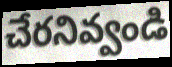
చేరనివ్వండి